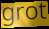
grot